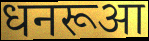
धनरूआ